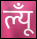
ल्यूँ